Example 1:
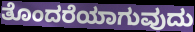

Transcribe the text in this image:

ತೊಂದರೆಯಾಗುವುದು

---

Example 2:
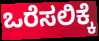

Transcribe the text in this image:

ಒರೆಸಲಿಕ್ಕೆ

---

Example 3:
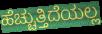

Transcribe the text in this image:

ಹೆಚ್ಚುತ್ತಿದೆಯಲ್ಲ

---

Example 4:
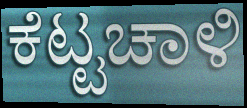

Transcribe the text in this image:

ಕೆಟ್ಟಚಾಳಿ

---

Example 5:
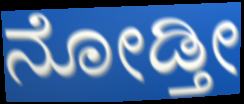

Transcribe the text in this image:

ನೋಡ್ತೀ